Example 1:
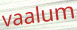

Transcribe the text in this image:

vaalum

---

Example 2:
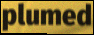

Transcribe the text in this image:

plumed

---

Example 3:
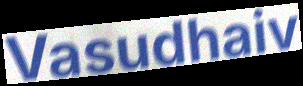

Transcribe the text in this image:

Vasudhaiv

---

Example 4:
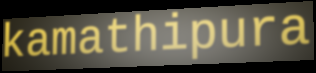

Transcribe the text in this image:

kamathipura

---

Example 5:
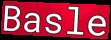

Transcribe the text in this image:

Basle